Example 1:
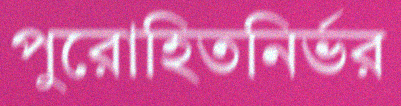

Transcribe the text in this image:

পুরোহিতনির্ভর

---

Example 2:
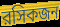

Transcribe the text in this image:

রসিকজন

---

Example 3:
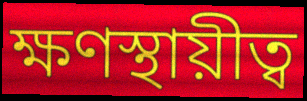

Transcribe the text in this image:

ক্ষণস্থায়ীত্ব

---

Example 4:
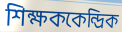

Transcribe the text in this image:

শিক্ষককেন্দ্রিক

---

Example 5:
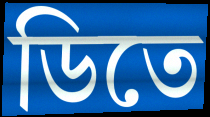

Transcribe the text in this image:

ডিতে